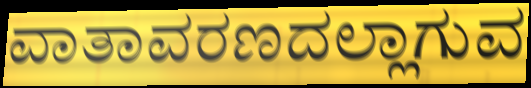
ವಾತಾವರಣದಲ್ಲಾಗುವ